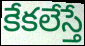
కేకలేస్తే